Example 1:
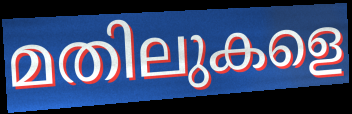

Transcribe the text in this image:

മതിലുകളെ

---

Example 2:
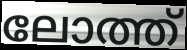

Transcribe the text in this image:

ലോത്ത്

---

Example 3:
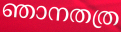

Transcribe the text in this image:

ഞാനതത്ര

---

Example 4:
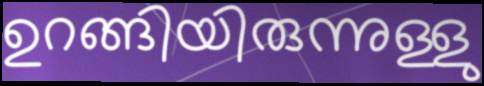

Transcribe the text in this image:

ഉറങ്ങിയിരുന്നുള്ളു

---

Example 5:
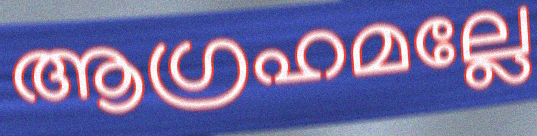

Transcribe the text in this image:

ആഗ്രഹമല്ലേ